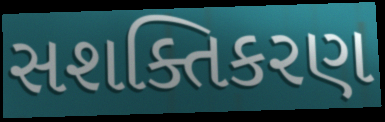
સશક્તિકરણ